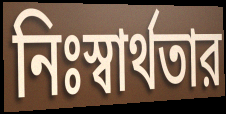
নিঃস্বার্থতার